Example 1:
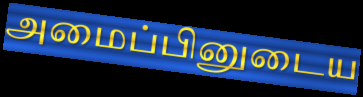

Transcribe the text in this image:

அமைப்பினுடைய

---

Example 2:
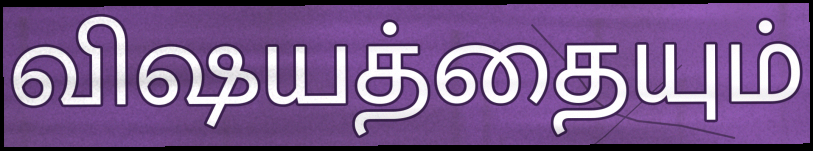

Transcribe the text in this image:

விஷயத்தையும்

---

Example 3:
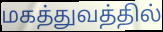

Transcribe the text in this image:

மகத்துவத்தில்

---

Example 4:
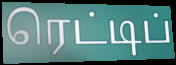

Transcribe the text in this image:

ரெட்டிப்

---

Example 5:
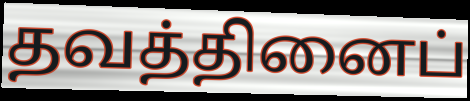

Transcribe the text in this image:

தவத்தினைப்